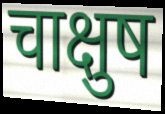
चाक्षुष